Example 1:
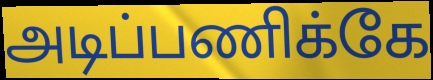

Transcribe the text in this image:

அடிப்பணிக்கே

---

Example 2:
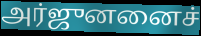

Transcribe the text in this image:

அர்ஜுனனைச்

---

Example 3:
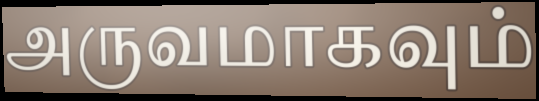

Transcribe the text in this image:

அருவமாகவும்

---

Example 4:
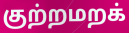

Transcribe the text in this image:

குற்றமறக்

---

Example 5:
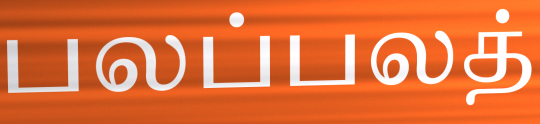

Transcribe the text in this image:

பலப்பலத்